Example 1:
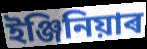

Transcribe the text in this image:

ইঞ্জিনিয়াৰ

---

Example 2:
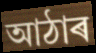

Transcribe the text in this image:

আঠাৰ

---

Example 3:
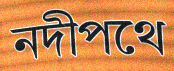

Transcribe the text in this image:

নদীপথে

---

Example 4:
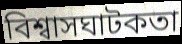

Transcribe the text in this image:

বিশ্বাসঘাটকতা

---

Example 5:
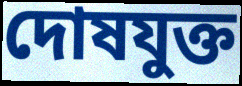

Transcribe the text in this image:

দোষযুক্ত